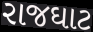
રાજઘાટ